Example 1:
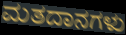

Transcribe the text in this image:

ಮತದಾನಗಳು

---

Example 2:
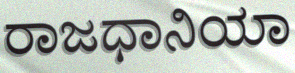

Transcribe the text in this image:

ರಾಜಧಾನಿಯಾ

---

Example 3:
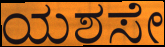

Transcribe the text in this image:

ಯಶಸೇ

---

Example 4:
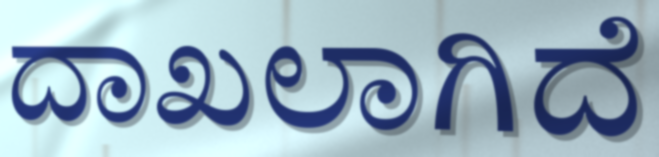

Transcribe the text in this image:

ದಾಖಲಾಗಿದೆ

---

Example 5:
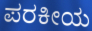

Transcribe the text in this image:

ಪರಕೀಯ